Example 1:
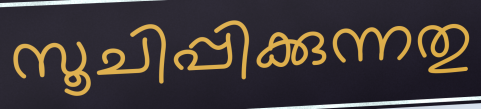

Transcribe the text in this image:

സൂചിപ്പിക്കുന്നതു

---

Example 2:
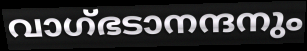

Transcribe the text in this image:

വാഗ്ഭടാനന്ദനും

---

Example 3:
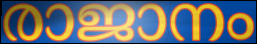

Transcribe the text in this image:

രാജാനം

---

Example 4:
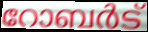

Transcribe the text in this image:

റോബർട്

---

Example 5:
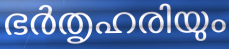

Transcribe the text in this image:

ഭർതൃഹരിയും